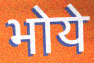
भोये